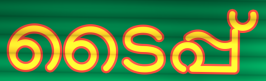
ടൈപ്പ്